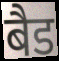
बैड